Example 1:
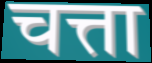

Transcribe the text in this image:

चत्ता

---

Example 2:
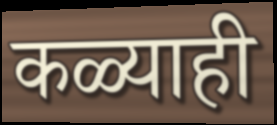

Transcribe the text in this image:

कळ्याही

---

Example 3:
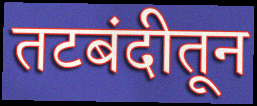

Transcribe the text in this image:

तटबंदीतून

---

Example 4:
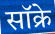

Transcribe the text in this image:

सॉक्रे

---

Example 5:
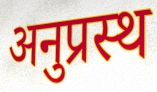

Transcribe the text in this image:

अनुप्रस्थ